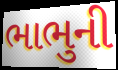
ભાભુની